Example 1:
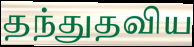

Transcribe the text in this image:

தந்துதவிய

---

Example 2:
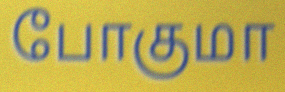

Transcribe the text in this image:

போகுமா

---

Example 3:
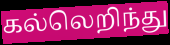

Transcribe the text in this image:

கல்லெறிந்து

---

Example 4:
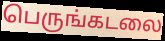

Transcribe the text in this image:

பெருங்கடலை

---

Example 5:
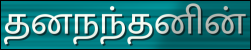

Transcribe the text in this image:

தனநந்தனின்